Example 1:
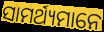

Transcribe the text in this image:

ସାମର୍ଥ୍ୟମାନେ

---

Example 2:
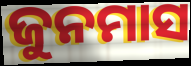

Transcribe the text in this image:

ଜୁନମାସ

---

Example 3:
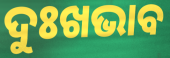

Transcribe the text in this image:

ଦୁଃଖଭାବ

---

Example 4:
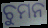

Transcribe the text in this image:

ଚୁମନ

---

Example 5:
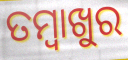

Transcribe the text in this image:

ତମ୍ବାଖୁର